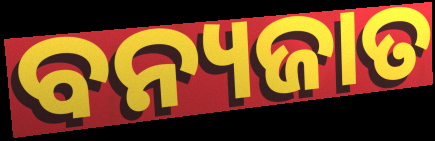
ବନ୍ୟଜାତ